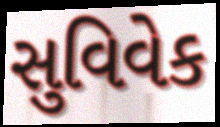
સુવિવેક